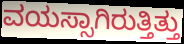
ವಯಸ್ಸಾಗಿರುತ್ತಿತ್ತು